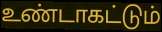
உண்டாகட்டும்